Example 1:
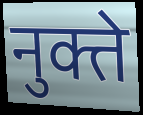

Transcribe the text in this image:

नुक्ते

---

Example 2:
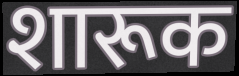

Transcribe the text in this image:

शारूक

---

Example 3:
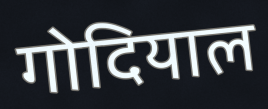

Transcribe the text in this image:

गोदियाल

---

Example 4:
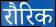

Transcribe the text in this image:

रौरिक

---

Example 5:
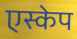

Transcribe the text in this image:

एस्केप